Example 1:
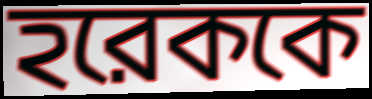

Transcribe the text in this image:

হরেককে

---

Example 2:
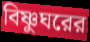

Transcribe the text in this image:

বিষ্ণুঘরের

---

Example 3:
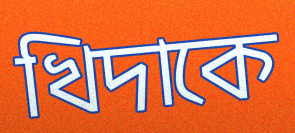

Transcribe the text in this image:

খিদাকে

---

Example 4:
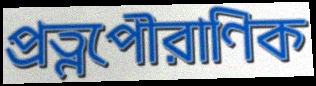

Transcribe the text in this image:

প্রত্নপৌরাণিক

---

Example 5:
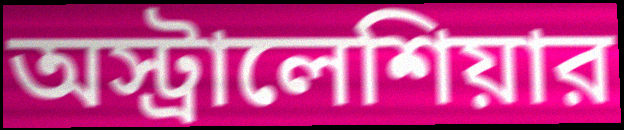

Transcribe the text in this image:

অস্ট্রালেশিয়ার